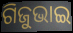
ଗିଜୁଭାଇ